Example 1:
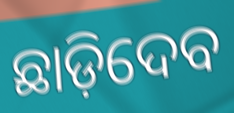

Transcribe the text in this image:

ଛାଡ଼ିଦେବ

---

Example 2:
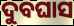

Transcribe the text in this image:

ଦୁବଘାସ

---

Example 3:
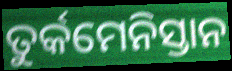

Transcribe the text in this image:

ତୁର୍କମେନିସ୍ତାନ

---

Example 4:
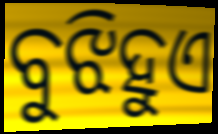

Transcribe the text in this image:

ବୁଝିହୁଏ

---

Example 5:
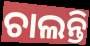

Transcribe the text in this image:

ଚାଲନ୍ତି